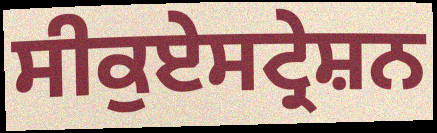
ਸੀਕੁਏਸਟ੍ਰੇਸ਼ਨ